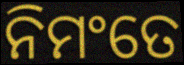
ନିମଂତେ